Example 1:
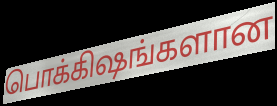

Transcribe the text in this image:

பொக்கிஷங்களான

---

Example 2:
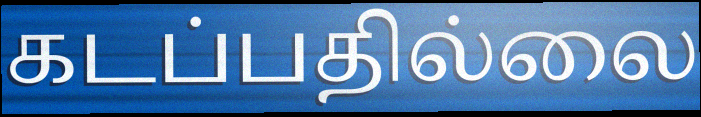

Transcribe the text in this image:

கடப்பதில்லை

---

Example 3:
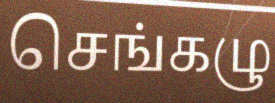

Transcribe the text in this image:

செங்கழு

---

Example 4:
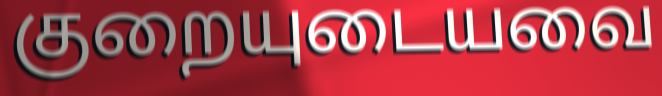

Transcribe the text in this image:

குறையுடையவை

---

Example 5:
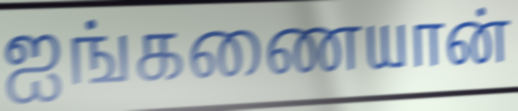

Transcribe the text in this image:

ஐங்கணையான்